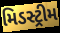
મિડસ્ટ્રીમ